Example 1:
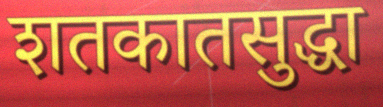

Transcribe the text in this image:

शतकातसुद्धा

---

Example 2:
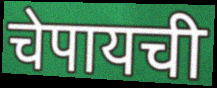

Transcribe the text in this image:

चेपायची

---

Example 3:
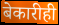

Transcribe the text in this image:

बेकारीही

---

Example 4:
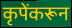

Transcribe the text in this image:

कृपेंकरून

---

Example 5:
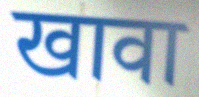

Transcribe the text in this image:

खावा